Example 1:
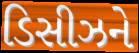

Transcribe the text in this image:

ડિસીઝને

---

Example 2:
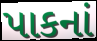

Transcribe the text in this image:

પાકનાં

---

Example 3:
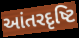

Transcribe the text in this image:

આંતરદૃષ્ટિ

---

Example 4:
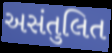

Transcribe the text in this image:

અસંતુલિત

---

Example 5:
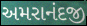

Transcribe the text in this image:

અમરાનંદજી